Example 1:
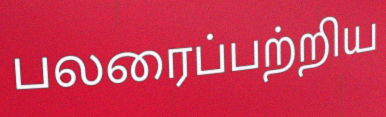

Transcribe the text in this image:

பலரைப்பற்றிய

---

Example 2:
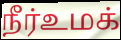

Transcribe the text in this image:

நீர்உமக்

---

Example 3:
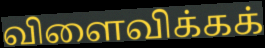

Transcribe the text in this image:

விளைவிக்கக்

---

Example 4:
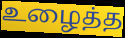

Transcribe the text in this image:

உழைத்த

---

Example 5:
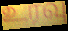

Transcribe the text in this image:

உரவு